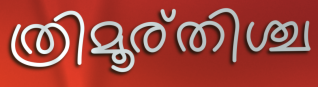
ത്രിമൂര്തിശ്ച